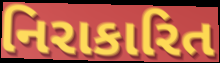
નિરાકારિત